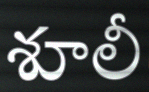
శూలీ